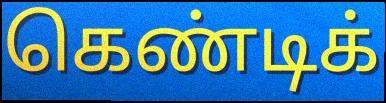
கெண்டிக்